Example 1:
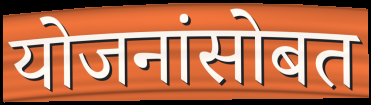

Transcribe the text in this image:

योजनांसोबत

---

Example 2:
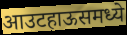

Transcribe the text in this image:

आउटहाऊसमध्ये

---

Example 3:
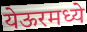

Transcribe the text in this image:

येऊरमध्ये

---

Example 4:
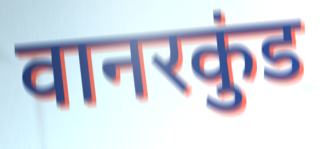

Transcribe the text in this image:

वानरकुंड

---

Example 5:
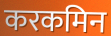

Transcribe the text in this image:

करकमिन